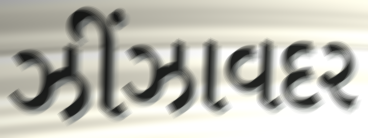
ઝીંઝાવદર